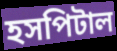
হসপিটাল